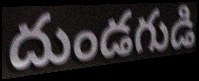
దుండగుడి